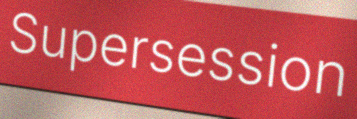
Supersession